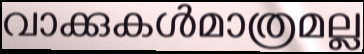
വാക്കുകൾമാത്രമല്ല